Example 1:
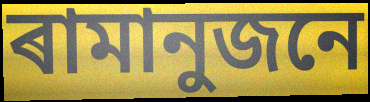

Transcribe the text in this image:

ৰামানুজনে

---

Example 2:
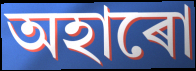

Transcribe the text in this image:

অহাৰো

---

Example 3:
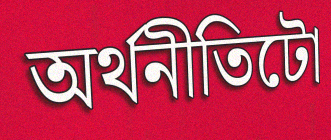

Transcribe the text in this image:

অৰ্থনীতিটো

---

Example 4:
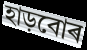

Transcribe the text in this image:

হাড়বোৰ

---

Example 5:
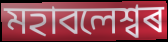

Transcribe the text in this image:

মহাবলেশ্বৰ